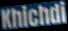
Khichdi